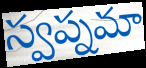
స్వప్నమా